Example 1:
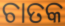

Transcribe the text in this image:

ଚାତକ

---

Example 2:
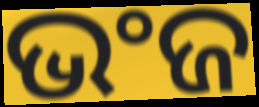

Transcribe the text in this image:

ଭଂଜ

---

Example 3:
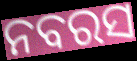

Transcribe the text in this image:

ନବରସ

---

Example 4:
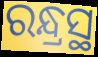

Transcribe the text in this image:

ରନ୍ଧ୍ରସ୍ଥ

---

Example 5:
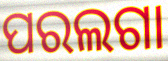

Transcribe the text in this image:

ପରଲଗା